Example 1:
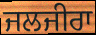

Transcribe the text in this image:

ਜਲਜੀਰਾ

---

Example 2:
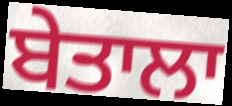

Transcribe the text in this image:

ਬੇਤਾਲਾ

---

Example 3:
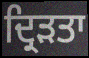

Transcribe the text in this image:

ਦ੍ਰਿੜਤਾ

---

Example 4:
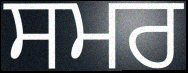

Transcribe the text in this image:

ਸਮਰ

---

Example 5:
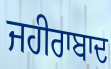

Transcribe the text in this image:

ਜਹੀਰਾਬਾਦ